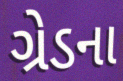
ગ્રેડના